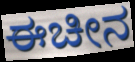
ಈಚೀನ